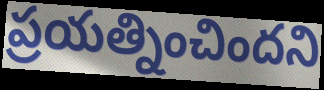
ప్రయత్నించిందని